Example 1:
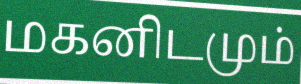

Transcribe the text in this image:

மகனிடமும்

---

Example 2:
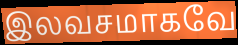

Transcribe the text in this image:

இலவசமாகவே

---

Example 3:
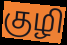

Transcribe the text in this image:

குழி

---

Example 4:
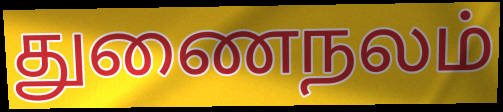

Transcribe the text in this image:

துணைநலம்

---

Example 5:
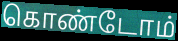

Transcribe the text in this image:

கொண்டோம்